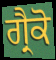
ਗ੍ਰੈਕੋ